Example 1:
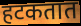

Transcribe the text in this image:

हटकतात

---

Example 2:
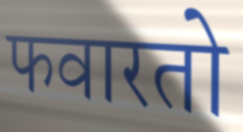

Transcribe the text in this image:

फवारतो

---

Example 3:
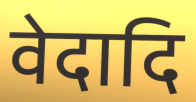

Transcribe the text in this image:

वेदादि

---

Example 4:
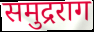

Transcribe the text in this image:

समुद्रराग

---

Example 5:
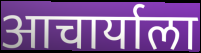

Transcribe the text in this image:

आचार्याला